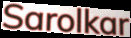
Sarolkar